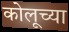
कोलूच्या